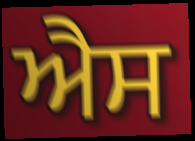
ਐੈਸ